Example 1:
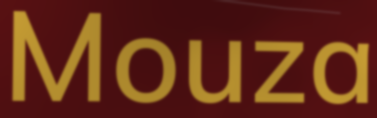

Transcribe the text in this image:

Mouza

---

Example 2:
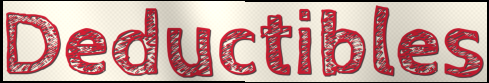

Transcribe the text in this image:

Deductibles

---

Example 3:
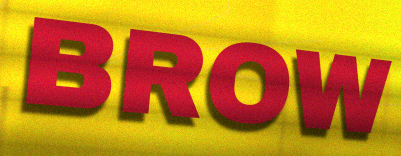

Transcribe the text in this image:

BROW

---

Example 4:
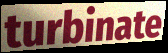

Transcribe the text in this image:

turbinate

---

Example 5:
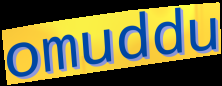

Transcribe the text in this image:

omuddu